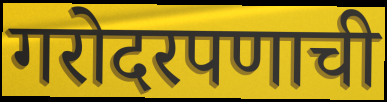
गरोदरपणाची